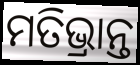
ମତିଭ୍ରାନ୍ତ